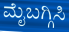
ಮೈಬಗ್ಗಿಸಿ